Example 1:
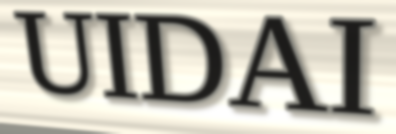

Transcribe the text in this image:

UIDAI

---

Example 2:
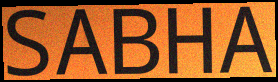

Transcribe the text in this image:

SABHA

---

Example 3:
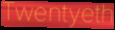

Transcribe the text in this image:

Twentyeth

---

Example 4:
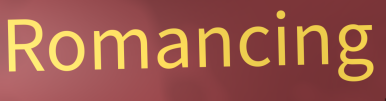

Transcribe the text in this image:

Romancing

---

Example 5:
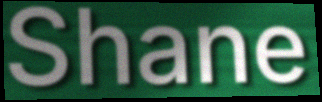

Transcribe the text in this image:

Shane